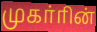
முகர்ரின்